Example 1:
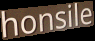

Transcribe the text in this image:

honsile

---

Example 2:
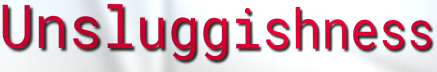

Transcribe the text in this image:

Unsluggishness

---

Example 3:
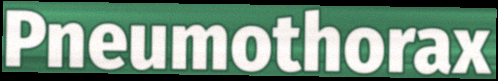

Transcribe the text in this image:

Pneumothorax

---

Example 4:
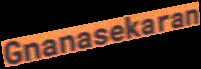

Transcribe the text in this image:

Gnanasekaran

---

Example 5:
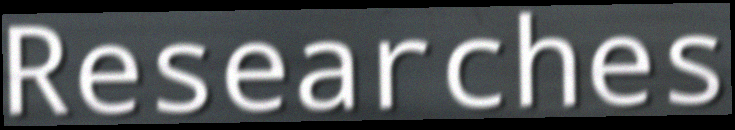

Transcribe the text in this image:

Researches